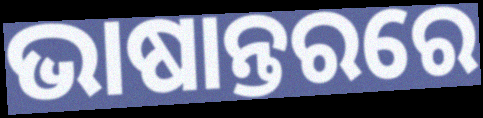
ଭାଷାନ୍ତରରେ